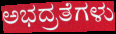
ಅಭದ್ರತೆಗಳು